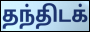
தந்திடக்